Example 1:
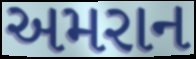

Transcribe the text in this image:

અમરાન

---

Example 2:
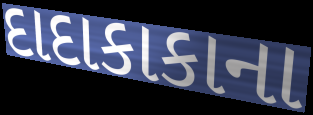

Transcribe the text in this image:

દાદાકાકાના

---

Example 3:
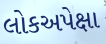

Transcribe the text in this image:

લોકઅપેક્ષા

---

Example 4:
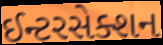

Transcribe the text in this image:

ઈન્ટરસેક્શન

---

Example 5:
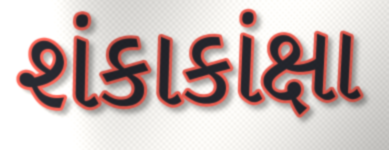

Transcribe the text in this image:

શંકાકાંક્ષા